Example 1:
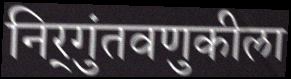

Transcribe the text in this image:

निर्गुंतवणुकीला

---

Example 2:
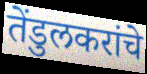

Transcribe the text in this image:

तेंडुलकरांचे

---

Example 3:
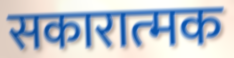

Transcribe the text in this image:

सकारात्‍मक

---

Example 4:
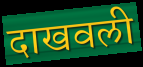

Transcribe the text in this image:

दाखवली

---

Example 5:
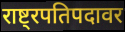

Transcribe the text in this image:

राष्ट्रपतिपदावर